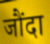
जौंदा